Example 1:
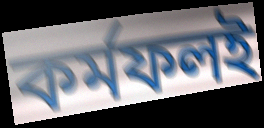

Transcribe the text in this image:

কর্মফলই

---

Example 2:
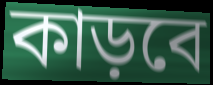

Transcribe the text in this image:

কাড়বে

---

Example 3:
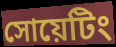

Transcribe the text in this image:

সোয়েটিং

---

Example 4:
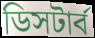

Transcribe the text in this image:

ডিসটার্ব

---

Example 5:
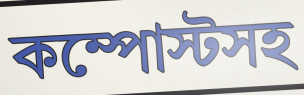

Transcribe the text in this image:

কম্পোস্টসহ